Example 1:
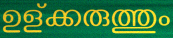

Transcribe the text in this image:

ഉള്ക്കരുത്തും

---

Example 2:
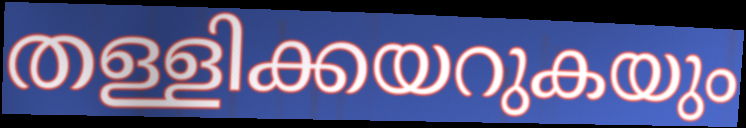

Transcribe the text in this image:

തള്ളിക്കയറുകയും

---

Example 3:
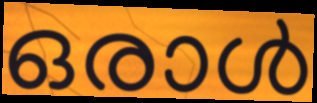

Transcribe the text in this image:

ഒരാൾ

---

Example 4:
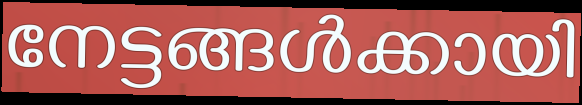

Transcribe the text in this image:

നേട്ടങ്ങൾക്കായി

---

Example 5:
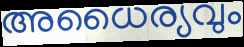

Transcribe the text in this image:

അധൈര്യവും